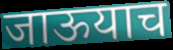
जाऊयाच